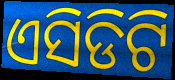
ଏସିଡିଟି